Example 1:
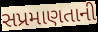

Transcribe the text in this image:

સપ્રમાણતાની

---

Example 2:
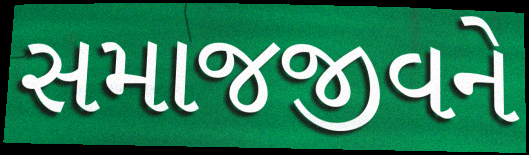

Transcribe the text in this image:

સમાજજીવને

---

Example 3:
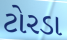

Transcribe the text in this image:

ટોરડા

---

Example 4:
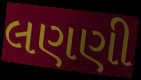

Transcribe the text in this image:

લણણી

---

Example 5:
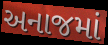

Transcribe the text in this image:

અનાજમાં